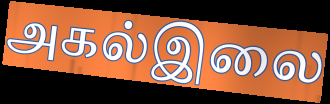
அகல்இலை